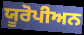
ਯੂਰੋਪੀਅਨ